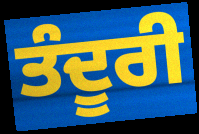
ਤੰਦੂਰੀ